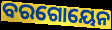
ବରଗୋୟେନ